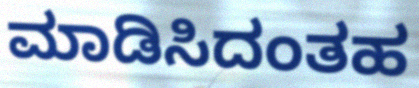
ಮಾಡಿಸಿದಂತಹ